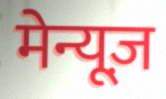
मेन्यूज़